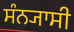
ਸੰਨ੍ਯਾਸੀ